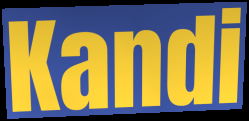
Kandi